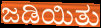
ಜಡಿಯಿತು